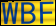
WBF